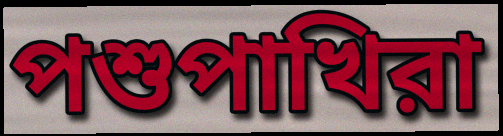
পশুপাখিরা